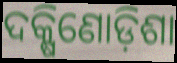
ଦକ୍ଷିଣୋଡ଼ିଶା